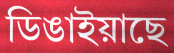
ডিঙাইয়াছে